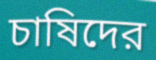
চাষিদের